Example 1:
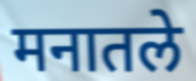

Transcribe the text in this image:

मनातले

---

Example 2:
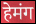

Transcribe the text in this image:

हेमंग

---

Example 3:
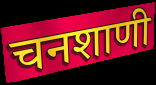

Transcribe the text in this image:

चनशाणी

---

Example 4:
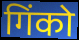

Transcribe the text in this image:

गिंको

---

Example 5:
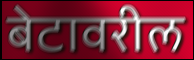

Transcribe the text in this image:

बेटावरील